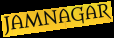
JAMNAGAR